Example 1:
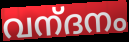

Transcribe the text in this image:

വന്‌ദനം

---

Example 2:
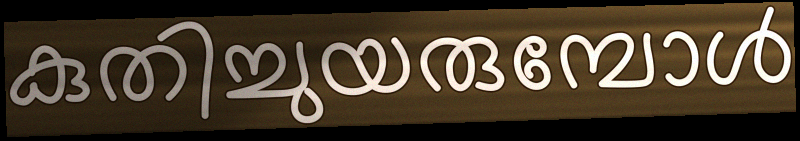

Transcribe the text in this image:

കുതിച്ചുയരുമ്പോൾ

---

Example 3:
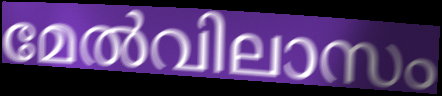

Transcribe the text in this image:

മേൽവിലാസം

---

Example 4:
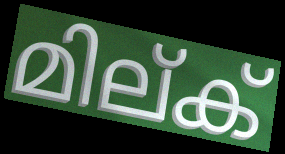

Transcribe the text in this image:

മില്ക്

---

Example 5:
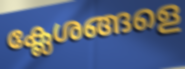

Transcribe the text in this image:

ക്ലേശങ്ങളെ